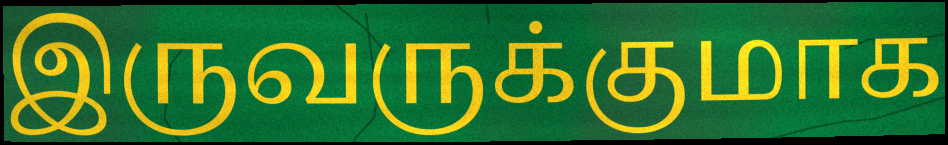
இருவருக்குமாக